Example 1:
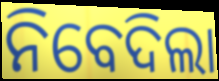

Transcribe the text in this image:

ନିବେଦିଲା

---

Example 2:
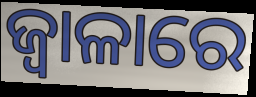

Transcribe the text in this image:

ଜ୍ଵାଳାରେ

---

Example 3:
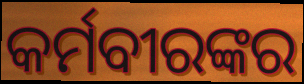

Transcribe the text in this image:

କର୍ମବୀରଙ୍କର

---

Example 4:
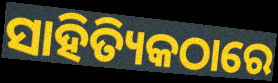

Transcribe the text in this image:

ସାହିତ୍ୟିକଠାରେ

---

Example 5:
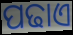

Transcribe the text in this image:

ପଢାଏ